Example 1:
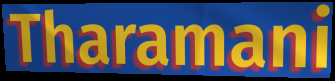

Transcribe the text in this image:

Tharamani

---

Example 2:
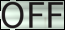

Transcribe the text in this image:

OFF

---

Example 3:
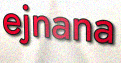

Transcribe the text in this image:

ejnana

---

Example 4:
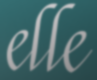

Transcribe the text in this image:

elle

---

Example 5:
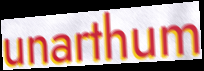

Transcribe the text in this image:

unarthum